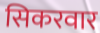
सिकरवार